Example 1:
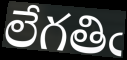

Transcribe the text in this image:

లేగతిఁ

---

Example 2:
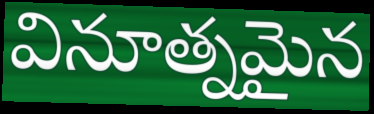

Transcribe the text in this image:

వినూత్నమైన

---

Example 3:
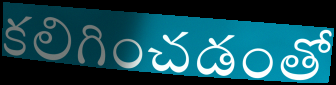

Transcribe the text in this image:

కలిగించడంతో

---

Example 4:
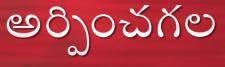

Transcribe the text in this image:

అర్పించగల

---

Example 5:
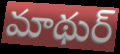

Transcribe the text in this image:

మాథుర్